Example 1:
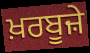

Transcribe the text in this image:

ਖ਼ਰਬੂਜ਼ੇ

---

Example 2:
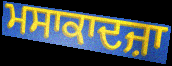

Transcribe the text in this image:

ਮਸਾਕਾਦਜ਼ਾ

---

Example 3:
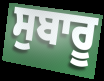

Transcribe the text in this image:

ਸੁਬਾਰੂ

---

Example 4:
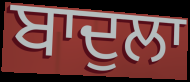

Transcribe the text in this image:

ਬਾਦੁਲਾ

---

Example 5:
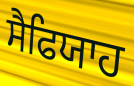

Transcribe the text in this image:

ਸੈਫਿਯਾਹ